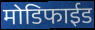
मोडिफाईड